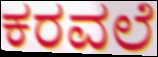
ಕರವಲೆ